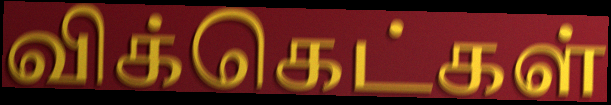
விக்கெட்கள்